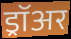
ड्रॉअर